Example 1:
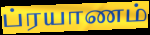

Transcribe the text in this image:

ப்ரயாணம்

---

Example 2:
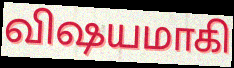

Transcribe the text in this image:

விஷயமாகி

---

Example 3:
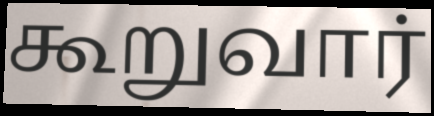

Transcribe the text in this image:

கூறுவார்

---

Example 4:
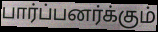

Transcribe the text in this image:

பார்ப்பனர்க்கும்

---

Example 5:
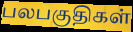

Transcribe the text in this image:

பலபகுதிகள்